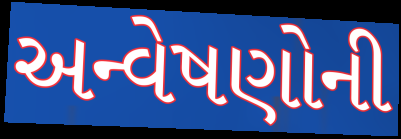
અન્વેષણોની